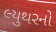
લ્યુથરનો